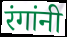
रंगांनी